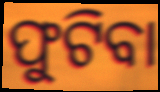
ଫୁଟିବା